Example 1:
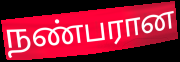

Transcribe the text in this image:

நண்பரான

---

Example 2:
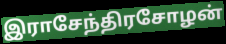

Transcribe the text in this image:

இராசேந்திரசோழன்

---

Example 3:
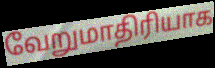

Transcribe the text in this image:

வேறுமாதிரியாக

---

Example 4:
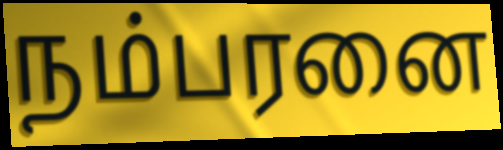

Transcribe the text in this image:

நம்பரனை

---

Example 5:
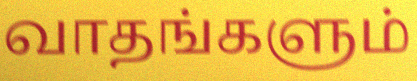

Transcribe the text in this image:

வாதங்களும்